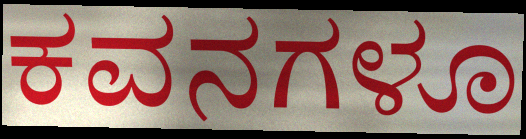
ಕವನಗಳೂ